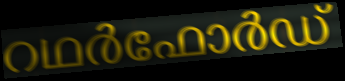
റഥർഫോർഡ്